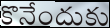
కొనేందుకు